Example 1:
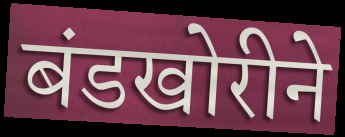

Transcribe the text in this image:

बंडखोरीने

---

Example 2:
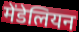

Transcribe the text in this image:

मेंडेलियन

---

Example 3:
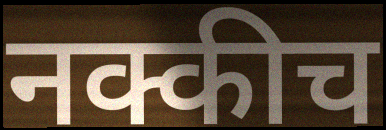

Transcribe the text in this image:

नक्कीच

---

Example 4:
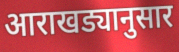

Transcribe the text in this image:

आराखड्यानुसार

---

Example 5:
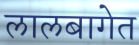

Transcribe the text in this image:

लालबागेत